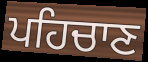
ਪਹਿਚਾਣ